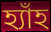
হ্যাঁহ